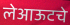
लेआऊटचे